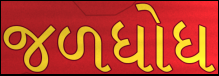
જળધોધ